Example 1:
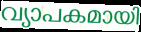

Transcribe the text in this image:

വ്യാപകമായി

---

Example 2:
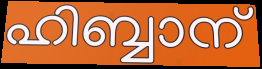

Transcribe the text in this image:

ഹിബ്ബാന്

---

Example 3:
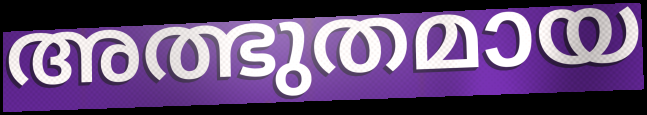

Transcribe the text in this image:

അത്ഭുതമായ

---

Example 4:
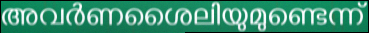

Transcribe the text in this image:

അവർണശൈലിയുമുണ്ടെന്ന്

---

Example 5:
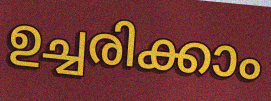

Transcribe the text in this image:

ഉച്ചരിക്കാം